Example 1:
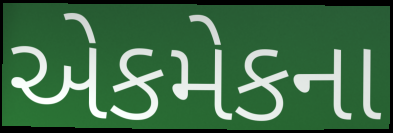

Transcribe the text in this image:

એકમેકના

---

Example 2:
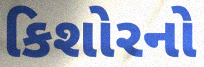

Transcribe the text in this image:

કિશોરનો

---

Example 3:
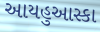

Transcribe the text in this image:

આયહુઆસ્કા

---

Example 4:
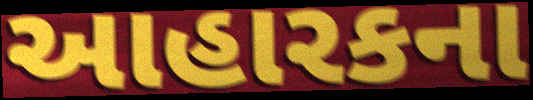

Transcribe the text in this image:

આહારકના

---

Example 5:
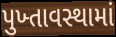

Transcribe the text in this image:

પુખ્તાવસ્થામાં